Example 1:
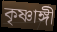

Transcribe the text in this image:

কৃষ্ণাঙ্গী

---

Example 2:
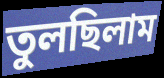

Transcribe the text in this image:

তুলছিলাম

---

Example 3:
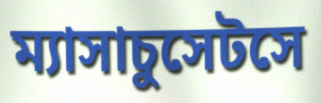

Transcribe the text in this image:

ম্যাসাচুসেটসে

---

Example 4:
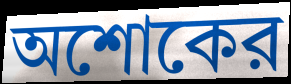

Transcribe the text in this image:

অশোকের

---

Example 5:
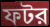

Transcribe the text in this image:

ফটর